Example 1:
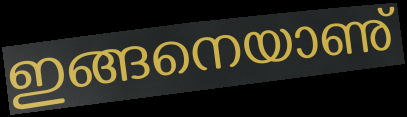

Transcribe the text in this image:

ഇങ്ങനെയാണു്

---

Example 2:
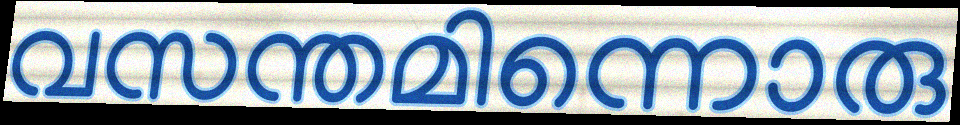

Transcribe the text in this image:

വസന്തമിന്നൊരു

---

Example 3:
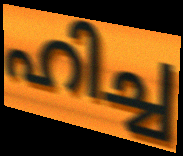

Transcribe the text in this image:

ഹിച്ച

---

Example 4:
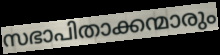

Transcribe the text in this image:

സഭാപിതാക്കന്മാരും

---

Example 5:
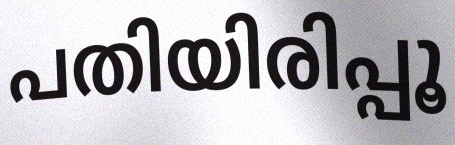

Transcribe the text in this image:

പതിയിരിപ്പൂ